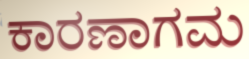
ಕಾರಣಾಗಮ